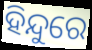
ହିନ୍ଦୁରେ